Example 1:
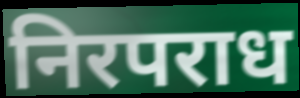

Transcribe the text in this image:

निरपराध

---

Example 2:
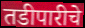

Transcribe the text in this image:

तडीपारीचे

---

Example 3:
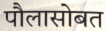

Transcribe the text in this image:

पौलासोबत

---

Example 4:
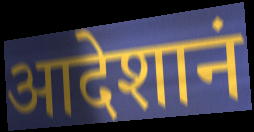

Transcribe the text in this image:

आदेशानं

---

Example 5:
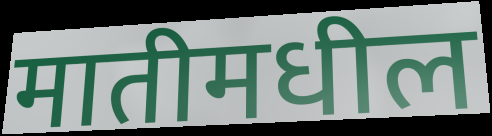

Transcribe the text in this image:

मातीमधील